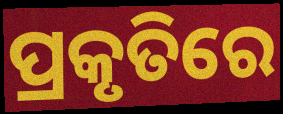
ପ୍ରକୃତିରେ